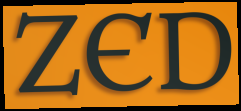
ZED